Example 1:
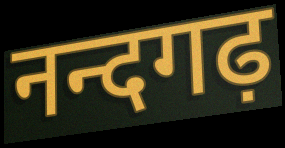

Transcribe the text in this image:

नन्दगढ़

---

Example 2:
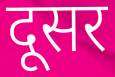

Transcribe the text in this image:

दूसर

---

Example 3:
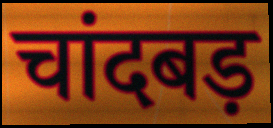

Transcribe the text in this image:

चांदबड़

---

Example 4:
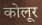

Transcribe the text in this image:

कोलूर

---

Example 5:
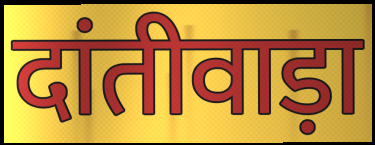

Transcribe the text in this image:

दांतीवाड़ा